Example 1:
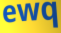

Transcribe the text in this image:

ewq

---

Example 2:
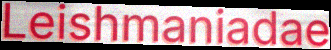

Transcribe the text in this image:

Leishmaniadae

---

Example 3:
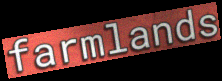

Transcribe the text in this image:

farmlands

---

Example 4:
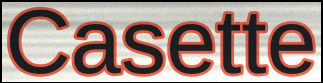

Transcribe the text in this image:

Casette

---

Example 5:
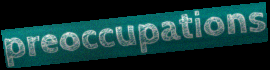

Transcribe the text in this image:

preoccupations